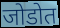
जोडोत